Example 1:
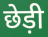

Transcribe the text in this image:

छेड़ी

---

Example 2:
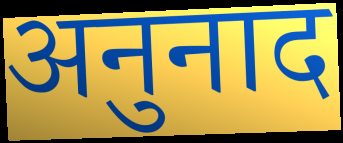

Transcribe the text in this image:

अनुनाद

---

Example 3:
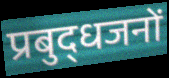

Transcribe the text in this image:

प्रबुद्धजनों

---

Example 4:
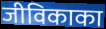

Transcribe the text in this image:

जीविकाका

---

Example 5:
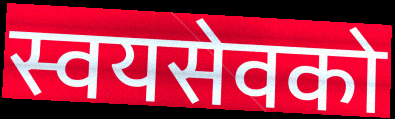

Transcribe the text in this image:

स्वयसेवको